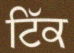
ਟਿੱਕ